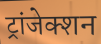
ट्रांजेक्शन